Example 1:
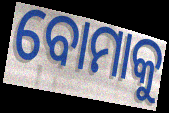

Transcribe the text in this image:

ବୋମାକୁ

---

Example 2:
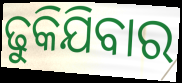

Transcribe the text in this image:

ଢୁକିଯିବାର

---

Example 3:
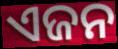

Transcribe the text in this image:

ଏଜନ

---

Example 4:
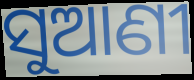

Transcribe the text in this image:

ସୁଆଣୀ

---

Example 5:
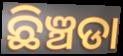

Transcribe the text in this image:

ଛିଞ୍ଚଡା